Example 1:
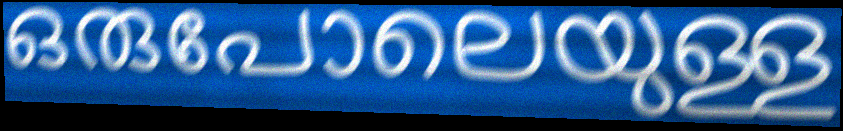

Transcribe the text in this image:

ഒരുപോലെയുള്ള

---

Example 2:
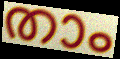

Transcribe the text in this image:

താം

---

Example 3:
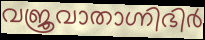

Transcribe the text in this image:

വജ്രവാതാഗ്നിഭിർ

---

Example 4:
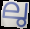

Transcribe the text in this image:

ലു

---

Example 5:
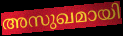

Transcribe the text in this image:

അസുഖമായി